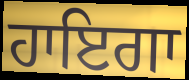
ਹਾਇਗਾ